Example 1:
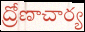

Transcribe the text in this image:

ద్రోణాచార్య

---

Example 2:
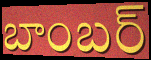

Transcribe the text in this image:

బాంబర్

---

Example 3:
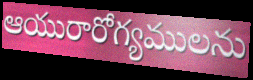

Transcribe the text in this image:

ఆయురారోగ్యములను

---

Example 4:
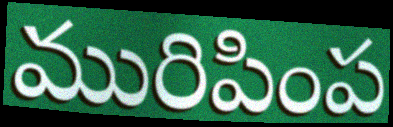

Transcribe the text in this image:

మురిపింప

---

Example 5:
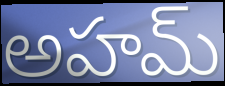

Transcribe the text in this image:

అహమ్